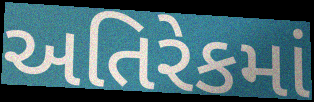
અતિરેકમાં